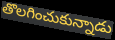
తొలగించుకున్నాడు